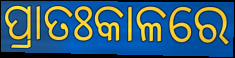
ପ୍ରାତଃକାଳରେ